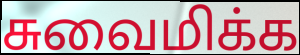
சுவைமிக்க